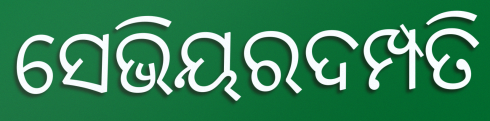
ସେଭିୟରଦମ୍ପତି